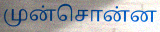
முன்சொன்ன